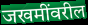
जखमींवरील